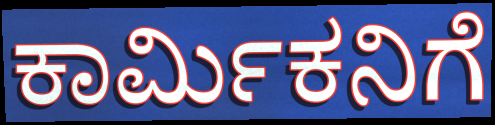
ಕಾರ್ಮಿಕನಿಗೆ